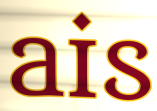
ais